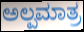
ಅಲ್ಪಮಾತ್ರ